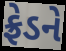
ફ્રેડને